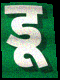
डू